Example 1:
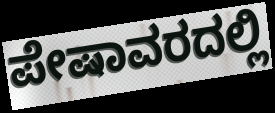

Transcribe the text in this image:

ಪೇಷಾವರದಲ್ಲಿ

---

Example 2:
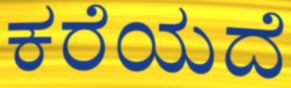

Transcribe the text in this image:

ಕರೆಯದೆ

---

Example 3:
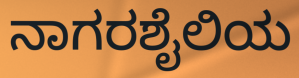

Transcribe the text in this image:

ನಾಗರಶೈಲಿಯ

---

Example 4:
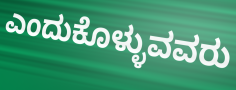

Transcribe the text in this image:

ಎಂದುಕೊಳ್ಳುವವರು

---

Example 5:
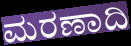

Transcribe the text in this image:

ಮರಣಾದಿ